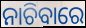
ନାଚିବାରେ